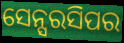
ସେନ୍ସରସିପର